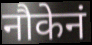
नौकेनं